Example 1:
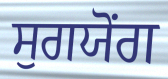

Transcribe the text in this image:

ਸੁਗਯੋਂਗ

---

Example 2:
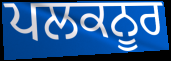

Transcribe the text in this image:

ਪਲਕਨੂਰ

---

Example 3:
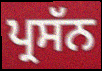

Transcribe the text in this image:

ਪ੍ਰਸੱਨ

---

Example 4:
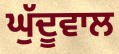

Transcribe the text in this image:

ਘੁੱਦੂਵਾਲ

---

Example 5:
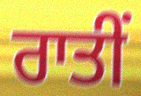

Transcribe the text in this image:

ਰਾਤੀਂ